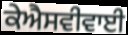
ਕੇਐਸਵੀਵਾਈ